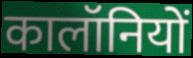
कालॉनियों